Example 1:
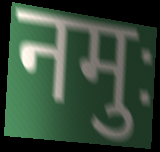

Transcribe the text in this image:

नमुः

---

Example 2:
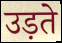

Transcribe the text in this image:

उड़ते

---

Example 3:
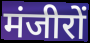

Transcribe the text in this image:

मंजीरों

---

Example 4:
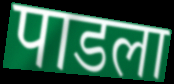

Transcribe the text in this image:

पाडला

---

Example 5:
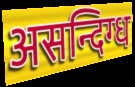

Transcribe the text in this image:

असन्दिग्ध